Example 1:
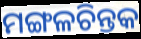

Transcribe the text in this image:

ମଙ୍ଗଳଚିନ୍ତକ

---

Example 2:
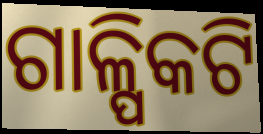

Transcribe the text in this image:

ଗାଳ୍ପିକଟି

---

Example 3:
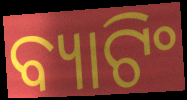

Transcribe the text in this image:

ବ୍ୟାଟିଂ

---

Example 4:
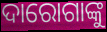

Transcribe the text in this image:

ଦାରୋଗାଙ୍କୁ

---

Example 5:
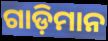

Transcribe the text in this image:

ଗାଡ଼ିମାନ